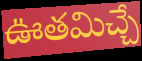
ఊతమిచ్చే